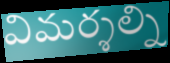
విమర్శల్ని